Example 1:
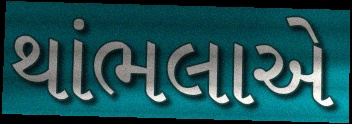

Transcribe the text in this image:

થાંભલાએ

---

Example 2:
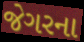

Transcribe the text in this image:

જેગરના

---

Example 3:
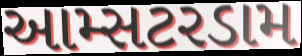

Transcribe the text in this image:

આમ્સટરડામ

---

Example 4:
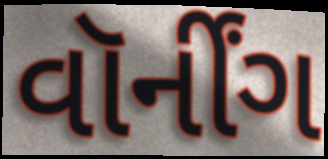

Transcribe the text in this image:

વૉર્નીંગ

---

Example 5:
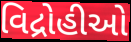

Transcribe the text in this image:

વિદ્રોહીઓ